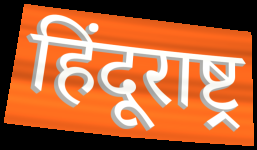
हिंदूराष्ट्र